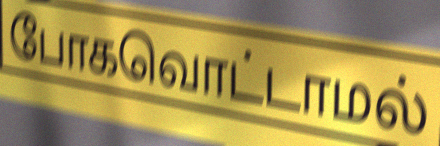
போகவொட்டாமல்